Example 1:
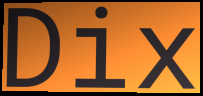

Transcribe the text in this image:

Dix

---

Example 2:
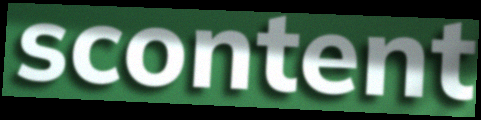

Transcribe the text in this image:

scontent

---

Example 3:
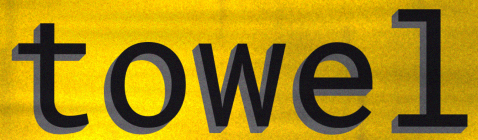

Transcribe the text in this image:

towel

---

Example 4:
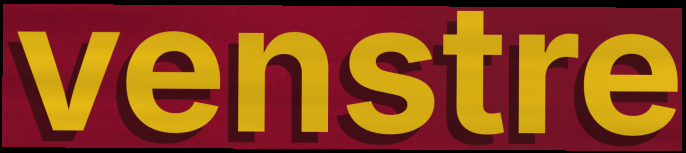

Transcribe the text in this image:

venstre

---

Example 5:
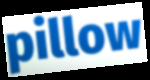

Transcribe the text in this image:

pillow